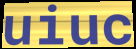
uiuc